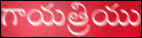
గాయత్రియు